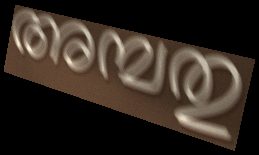
അമ്പതു